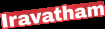
Iravatham